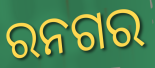
ରନଗର